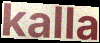
kalla